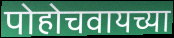
पोहोचवायच्या